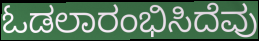
ಓಡಲಾರಂಭಿಸಿದೆವು